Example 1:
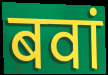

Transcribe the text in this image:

बवां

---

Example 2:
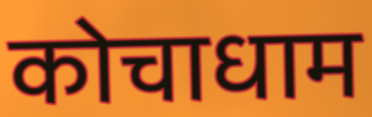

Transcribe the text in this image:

कोचाधाम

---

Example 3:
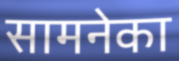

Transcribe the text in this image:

सामनेका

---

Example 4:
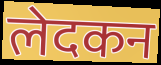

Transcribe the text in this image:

लेदकन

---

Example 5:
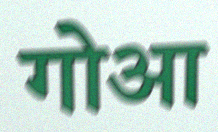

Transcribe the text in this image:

गोआ